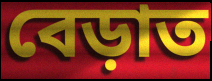
বেড়াত